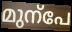
മുന്പേ